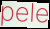
pele